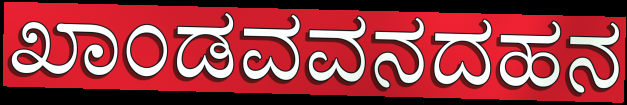
ಖಾಂಡವವನದಹನ